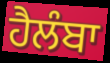
ਹੈਲੰਬਾ